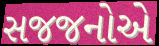
સજજનોએ